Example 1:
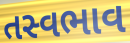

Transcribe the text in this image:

તસ્વભાવ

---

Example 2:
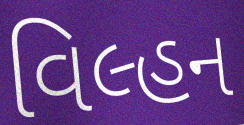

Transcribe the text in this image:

વિલ્હન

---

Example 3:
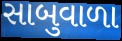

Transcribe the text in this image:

સાબુવાળા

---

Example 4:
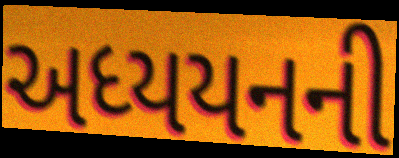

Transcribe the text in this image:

અધ્યયનની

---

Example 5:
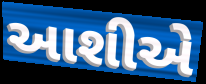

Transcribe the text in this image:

આશીએ